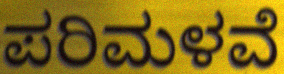
ಪರಿಮಳವೆ